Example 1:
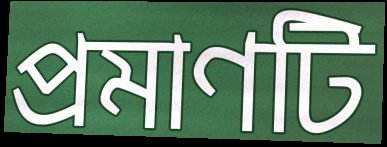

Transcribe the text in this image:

প্রমাণটি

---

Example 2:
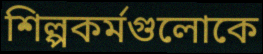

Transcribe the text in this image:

শিল্পকর্মগুলোকে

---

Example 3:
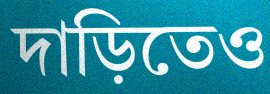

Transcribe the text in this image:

দাড়িতেও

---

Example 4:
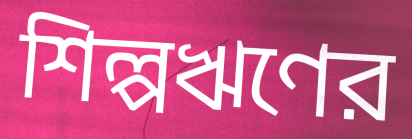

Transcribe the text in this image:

শিল্পঋণের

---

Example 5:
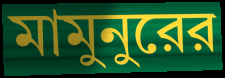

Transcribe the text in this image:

মামুনুরের